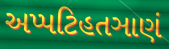
અપ્પટિહતઞાણં